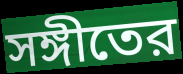
সঙ্গীতের